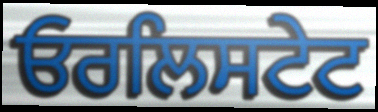
ਓਰਲਿਸਟੇਟ